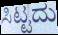
ಸಿಟ್ಟದು